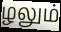
ழலும்